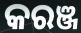
କରଞ୍ଜ